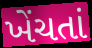
ખેંચતાં